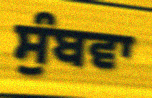
ਸੁੰਬਵਾ